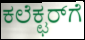
ಕಲೆಕ್ಟರ್‌ಗೆ